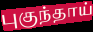
புகுந்தாய்